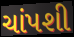
ચાંપશી